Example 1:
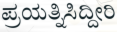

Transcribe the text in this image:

ಪ್ರಯತ್ನಿಸಿದ್ದೀರಿ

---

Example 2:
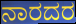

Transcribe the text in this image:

ನಾರದರ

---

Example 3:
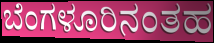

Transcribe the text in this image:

ಬೆಂಗಳೂರಿನಂತಹ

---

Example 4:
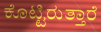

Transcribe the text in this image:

ಕೊಟ್ಟಿರುತ್ತಾರೆ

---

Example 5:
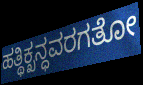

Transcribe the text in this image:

ಹತ್ಥಿಕ್ಖನ್ಧವರಗತೋ